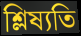
শ্লিষ্যতি